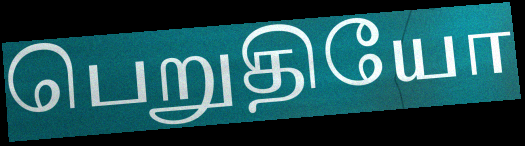
பெறுதியோ